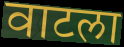
वाटला